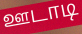
ஊடாடி